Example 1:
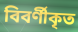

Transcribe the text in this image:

বিবর্ণীকৃত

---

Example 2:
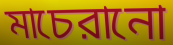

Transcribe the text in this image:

মাচেরানো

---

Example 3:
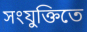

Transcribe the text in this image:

সংযুক্তিতে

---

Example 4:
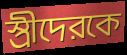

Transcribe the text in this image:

স্ত্রীদেরকে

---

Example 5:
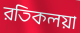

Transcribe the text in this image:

রতিকলয়া